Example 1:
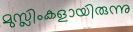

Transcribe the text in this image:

മുസ്ലിംകളായിരുന്നു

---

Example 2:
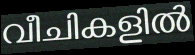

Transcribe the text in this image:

വീചികളിൽ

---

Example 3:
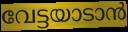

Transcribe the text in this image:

വേട്ടയാടാൻ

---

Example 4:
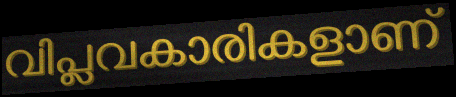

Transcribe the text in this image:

വിപ്ലവകാരികളാണ്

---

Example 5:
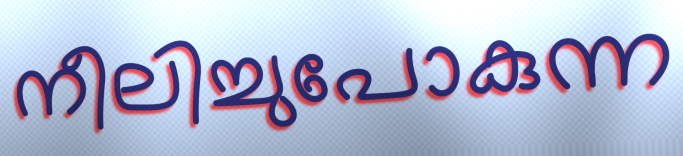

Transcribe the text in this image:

നീലിച്ചുപോകുന്ന